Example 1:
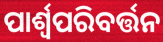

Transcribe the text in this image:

ପାର୍ଶ୍ଵପରିବର୍ତ୍ତନ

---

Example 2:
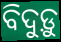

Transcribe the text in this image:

ବିଦୁଡ଼ୁ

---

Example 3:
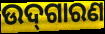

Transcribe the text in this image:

ଉଦ୍‌ଗାରଣ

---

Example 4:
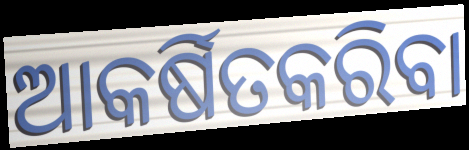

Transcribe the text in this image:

ଆକର୍ଷିତକରିବା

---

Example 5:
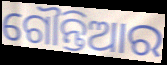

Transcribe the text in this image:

ଗୌନ୍ତିଆର